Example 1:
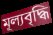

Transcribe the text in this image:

মূল্যবৃদ্ধি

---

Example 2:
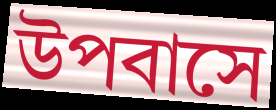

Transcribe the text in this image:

উপবাসে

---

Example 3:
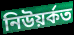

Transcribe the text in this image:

নিউয়ৰ্কত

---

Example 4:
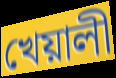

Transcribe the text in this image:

খেয়ালী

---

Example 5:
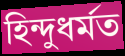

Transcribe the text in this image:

হিন্দুধৰ্মত